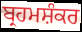
ਬ੍ਰਹਮਸ਼ੰਕਰ